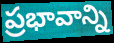
ప్రభావాన్ని